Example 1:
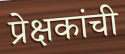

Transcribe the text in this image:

प्रेक्षकांची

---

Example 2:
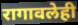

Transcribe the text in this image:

रागावलेही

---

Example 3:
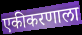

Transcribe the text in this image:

एकीकरणाला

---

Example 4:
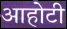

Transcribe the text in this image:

आहोटी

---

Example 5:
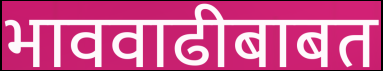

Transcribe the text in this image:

भाववाढीबाबत